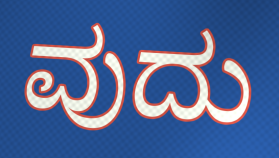
ವುದು